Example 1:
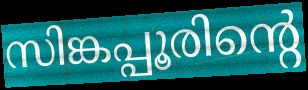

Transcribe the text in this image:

സിങ്കപ്പൂരിന്റെ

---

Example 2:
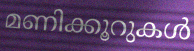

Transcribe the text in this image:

മണിക്കൂറുകൾ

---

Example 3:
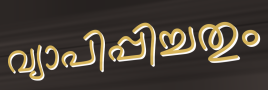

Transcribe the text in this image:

വ്യാപിപ്പിച്ചതും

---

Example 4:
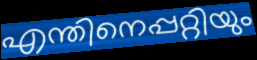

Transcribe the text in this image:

എന്തിനെപ്പറ്റിയും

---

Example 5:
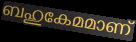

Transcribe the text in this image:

ബഹുകേമമാണ്